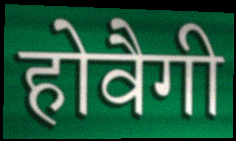
होवैगी